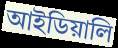
আইডিয়ালি